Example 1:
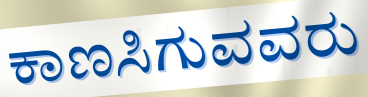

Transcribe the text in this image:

ಕಾಣಸಿಗುವವರು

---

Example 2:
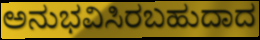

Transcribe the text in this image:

ಅನುಭವಿಸಿರಬಹುದಾದ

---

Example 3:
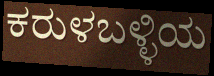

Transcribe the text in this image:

ಕರುಳಬಳ್ಳಿಯ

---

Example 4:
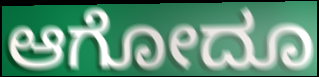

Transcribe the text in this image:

ಆಗೋದೂ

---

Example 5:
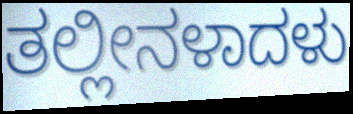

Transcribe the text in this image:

ತಲ್ಲೀನಳಾದಳು